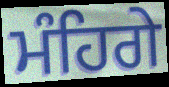
ਮੰਹਿਗੇ